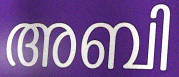
അബി